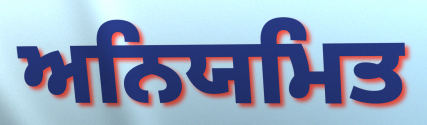
ਅਨਿਯਮਿਤ